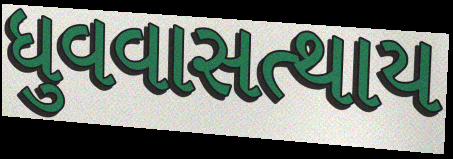
ધુવવાસત્થાય